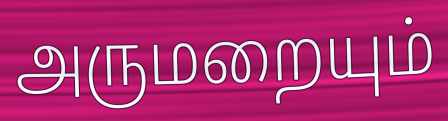
அருமறையும்